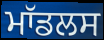
ਮਾੱਡਲਸ